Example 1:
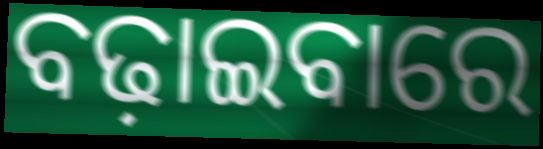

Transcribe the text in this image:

ବଢ଼ାଇବାରେ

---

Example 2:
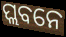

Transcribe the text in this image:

ପ୍ଲବନେ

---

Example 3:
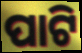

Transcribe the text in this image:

ପାଟି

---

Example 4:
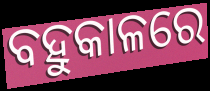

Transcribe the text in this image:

ବହୁକାଳରେ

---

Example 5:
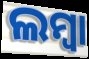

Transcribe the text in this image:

ଲମ୍ୱା